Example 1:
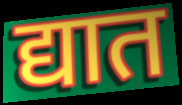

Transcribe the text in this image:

द्यात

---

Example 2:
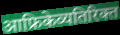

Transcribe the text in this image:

आफ्रिकेव्यतिरिक्त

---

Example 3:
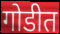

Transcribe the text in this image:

गोडीत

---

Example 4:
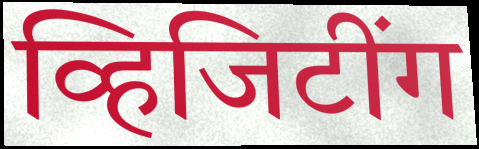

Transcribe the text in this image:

व्हिजिटींग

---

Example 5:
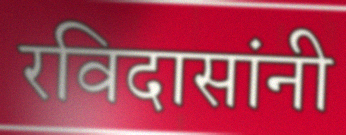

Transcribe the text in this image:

रविदासांनी